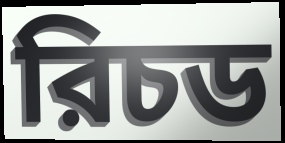
রিচড